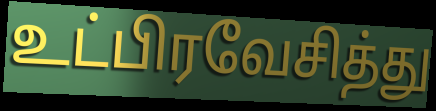
உட்பிரவேசித்து